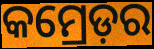
କମ୍ରେଡ଼ର